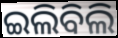
ଇଲିବିଲି